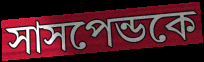
সাসপেন্ডকে